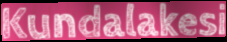
Kundalakesi